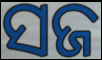
ସଜ